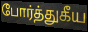
போர்த்துகீய